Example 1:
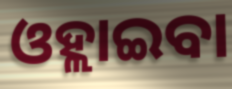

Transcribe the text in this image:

ଓହ୍ଲାଇବା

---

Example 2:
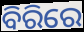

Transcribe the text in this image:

ବିରିରେ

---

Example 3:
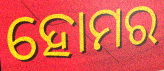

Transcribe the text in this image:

ହୋମର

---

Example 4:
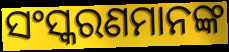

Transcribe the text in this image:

ସଂସ୍କରଣମାନଙ୍କ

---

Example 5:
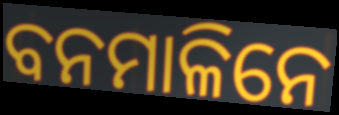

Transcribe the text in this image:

ବନମାଳିନେ